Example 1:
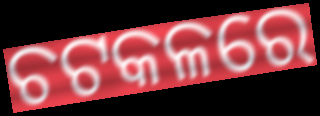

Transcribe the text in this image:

ଚଟକଳରେ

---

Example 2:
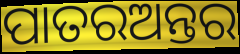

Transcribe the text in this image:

ପାତରଅନ୍ତର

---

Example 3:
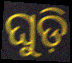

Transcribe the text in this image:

ଘୁଡ଼ି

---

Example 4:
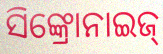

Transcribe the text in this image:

ସିଙ୍କ୍ରୋନାଇଜ୍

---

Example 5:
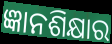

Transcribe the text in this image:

ଜ୍ଞାନଶିକ୍ଷାର